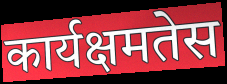
कार्यक्षमतेस